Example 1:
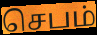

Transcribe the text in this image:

செபம்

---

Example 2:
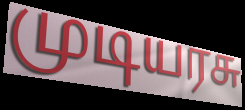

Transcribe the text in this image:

முடியரசு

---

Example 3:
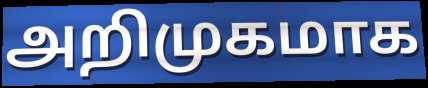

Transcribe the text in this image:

அறிமுகமாக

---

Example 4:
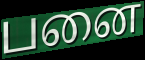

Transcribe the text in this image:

பனை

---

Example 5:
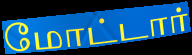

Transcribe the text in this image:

மோட்டார்